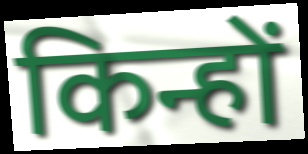
किन्हों